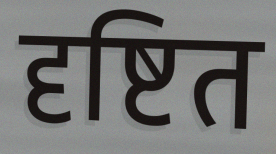
दृष्टित